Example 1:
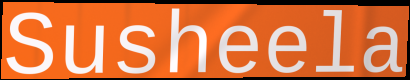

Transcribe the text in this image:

Susheela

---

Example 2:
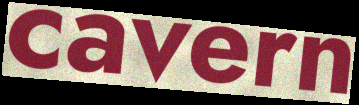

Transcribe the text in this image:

cavern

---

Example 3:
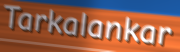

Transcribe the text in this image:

Tarkalankar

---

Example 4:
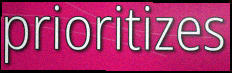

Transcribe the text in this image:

prioritizes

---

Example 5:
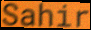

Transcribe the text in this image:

Sahir